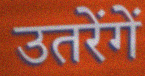
उतरेंगें